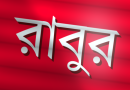
রাবুর